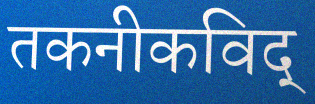
तकनीकविद्